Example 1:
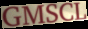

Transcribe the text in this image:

GMSCL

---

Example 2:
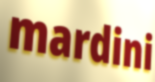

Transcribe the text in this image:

mardini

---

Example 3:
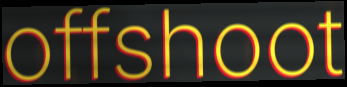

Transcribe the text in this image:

offshoot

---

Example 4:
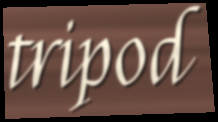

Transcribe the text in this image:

tripod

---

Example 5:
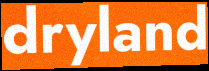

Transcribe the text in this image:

dryland